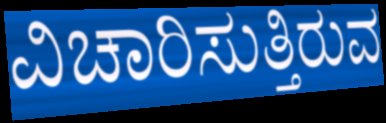
ವಿಚಾರಿಸುತ್ತಿರುವ